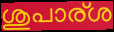
ശുപാര്ശ